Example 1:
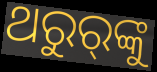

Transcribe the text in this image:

ଥରୁର୍‌ଙ୍କୁ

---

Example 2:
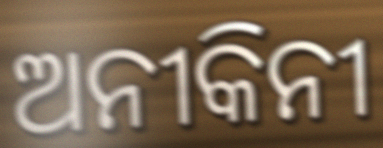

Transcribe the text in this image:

ଅନୀକିନୀ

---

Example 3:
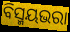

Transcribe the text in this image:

ବିସ୍ମୟଭରା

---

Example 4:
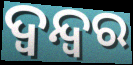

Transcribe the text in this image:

ଦ୍ଵନ୍ଦ୍ୱର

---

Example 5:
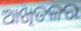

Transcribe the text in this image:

ଆଖିତଳର